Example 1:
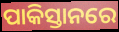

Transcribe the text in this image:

ପାକିସ୍ତାନରେ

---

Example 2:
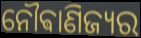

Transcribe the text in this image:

ନୌଵାଣିଜ୍ୟର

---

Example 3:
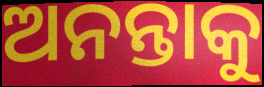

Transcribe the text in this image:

ଅନନ୍ତାକୁ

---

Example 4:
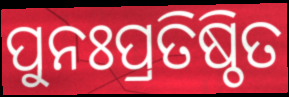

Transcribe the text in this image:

ପୁନଃପ୍ରତିଷ୍ଠିତ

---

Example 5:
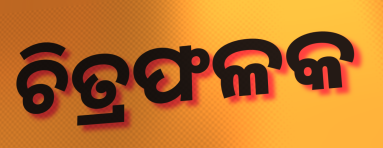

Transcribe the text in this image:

ଚିତ୍ରଫଳକ